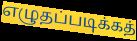
எழுதப்படிக்கத்